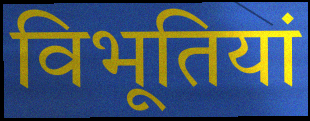
विभूतियां